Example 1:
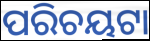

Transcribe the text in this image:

ପରିଚୟଟା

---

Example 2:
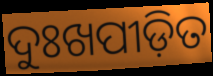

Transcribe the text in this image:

ଦୁଃଖପୀଡ଼ିତ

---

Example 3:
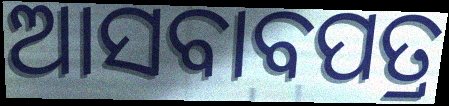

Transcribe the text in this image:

ଆସବାବପତ୍ର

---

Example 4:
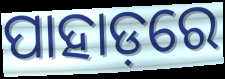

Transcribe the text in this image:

ପାହାଡ଼ରେ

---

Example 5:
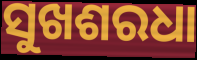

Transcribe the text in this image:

ସୁଖଶରଧା